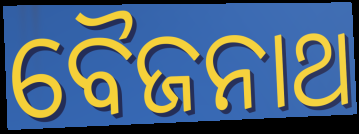
ବୈଜନାଥ